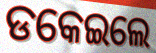
ଡକେଇଲେ